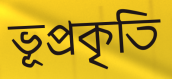
ভূপ্রকৃতি